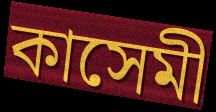
কাসেমী